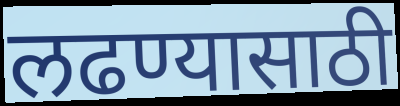
लढण्यासाठी